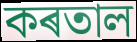
কৰতাল